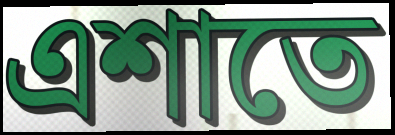
এশাতে